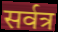
सर्वत्र